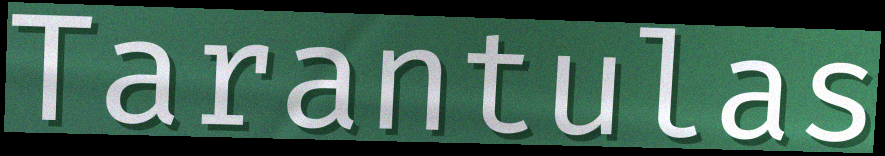
Tarantulas